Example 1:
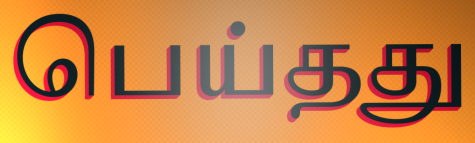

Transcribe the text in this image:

பெய்தது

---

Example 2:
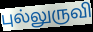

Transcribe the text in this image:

புல்லுருவி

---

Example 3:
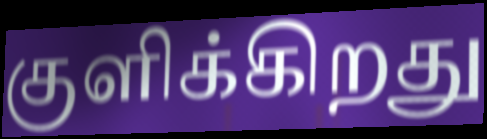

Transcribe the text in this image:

குளிக்கிறது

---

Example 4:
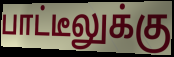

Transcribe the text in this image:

பாட்டீலுக்கு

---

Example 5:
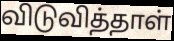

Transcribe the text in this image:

விடுவித்தாள்